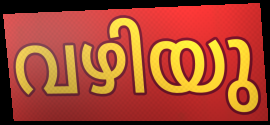
വഴിയു